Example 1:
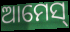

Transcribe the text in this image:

ଆମେସ୍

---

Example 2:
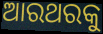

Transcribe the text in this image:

ଆରଥରକୁ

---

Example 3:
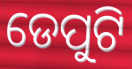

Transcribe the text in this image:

ଡେପୁଟି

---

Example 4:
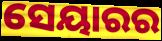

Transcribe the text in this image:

ସେୟାରର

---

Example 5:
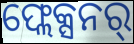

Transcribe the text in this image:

ଫ୍ଲେକ୍ସନର୍